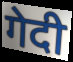
गेदी